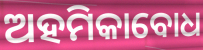
ଅହମିକାବୋଧ